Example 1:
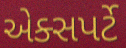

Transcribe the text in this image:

એક્સપર્ટે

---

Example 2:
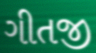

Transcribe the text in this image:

ગીતજી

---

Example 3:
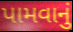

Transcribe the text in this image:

પામવાનું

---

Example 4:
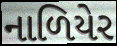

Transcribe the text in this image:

નાળિયેર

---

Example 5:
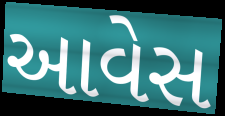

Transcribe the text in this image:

આવેસ